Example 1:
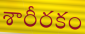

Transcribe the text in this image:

శారీరకం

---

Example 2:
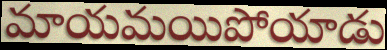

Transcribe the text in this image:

మాయమయిపోయాడు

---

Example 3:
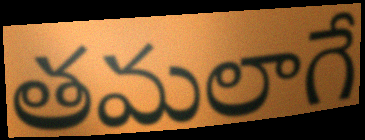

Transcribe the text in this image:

తమలాగే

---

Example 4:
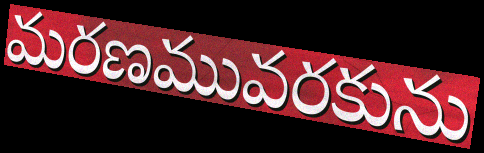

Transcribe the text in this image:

మరణమువరకును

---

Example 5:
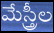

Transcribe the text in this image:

మేస్త్రీల